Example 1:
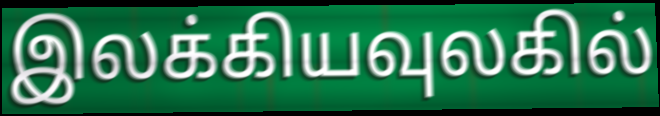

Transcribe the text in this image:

இலக்கியவுலகில்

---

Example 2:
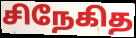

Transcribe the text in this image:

சிநேகித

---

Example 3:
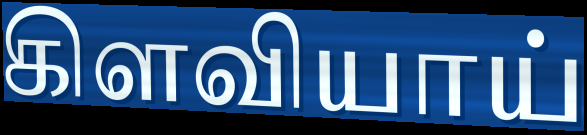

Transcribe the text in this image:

கிளவியாய்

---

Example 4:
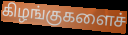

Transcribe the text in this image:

கிழங்குகளைச்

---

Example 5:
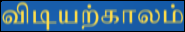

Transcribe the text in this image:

விடியற்காலம்